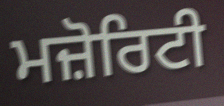
ਮਜ਼ੋਰਿਟੀ